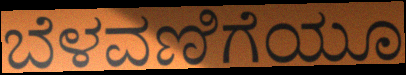
ಬೆಳವಣಿಗೆಯೂ